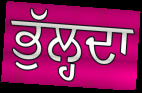
ਭੁੱਲ੍ਹਦਾ